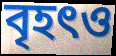
বৃহৎও